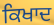
ਕਿਖਾਦ